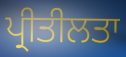
ਪ੍ਰੀਤੀਲਤਾ